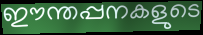
ഈന്തപ്പനകളുടെ